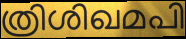
ത്രിശിഖമപി